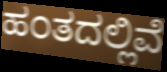
ಹಂತದಲ್ಲಿವೆ